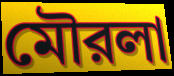
মৌরলা